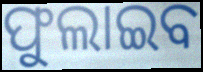
ଫୁଲାଇବ